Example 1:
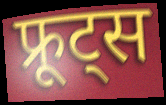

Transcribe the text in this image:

फ्रूट्स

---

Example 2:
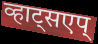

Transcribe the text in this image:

व्हाट्सएप्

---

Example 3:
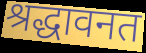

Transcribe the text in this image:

श्रद्धावनत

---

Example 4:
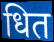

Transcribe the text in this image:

धित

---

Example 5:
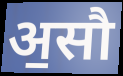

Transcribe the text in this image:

अ॒सौ